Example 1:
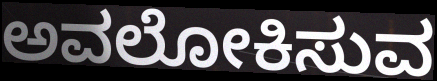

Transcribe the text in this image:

ಅವಲೋಕಿಸುವ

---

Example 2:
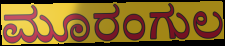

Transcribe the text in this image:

ಮೂರಂಗುಲ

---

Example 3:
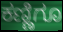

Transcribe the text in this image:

ಕಣ್ಣಿಗೂ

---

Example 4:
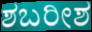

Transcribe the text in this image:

ಶಬರೀಶ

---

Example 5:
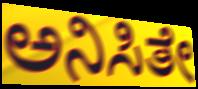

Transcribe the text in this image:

ಅನಿಸಿತೇ